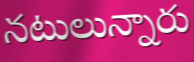
నటులున్నారు